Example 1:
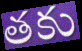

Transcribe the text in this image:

తకు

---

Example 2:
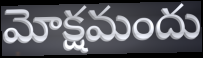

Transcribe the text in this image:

మోక్షమందు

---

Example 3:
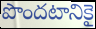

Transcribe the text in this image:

పొందటానికై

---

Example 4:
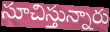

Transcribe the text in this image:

సూచిస్తున్నారు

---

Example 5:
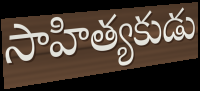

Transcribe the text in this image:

సాహిత్యకుడు